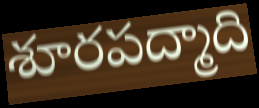
శూరపద్మాది